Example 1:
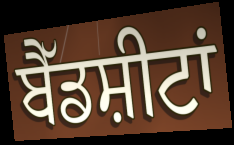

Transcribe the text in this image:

ਬੈੱਡਸ਼ੀਟਾਂ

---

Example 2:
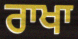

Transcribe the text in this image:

ਰਾਖਾ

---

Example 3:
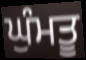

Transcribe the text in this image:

ਘੁੰਮਤੂ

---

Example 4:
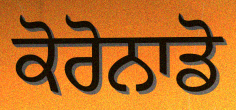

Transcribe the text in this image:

ਕੋਰੋਨਾਡੋ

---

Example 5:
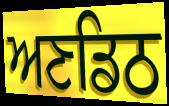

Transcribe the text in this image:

ਅਣਡਿਠ